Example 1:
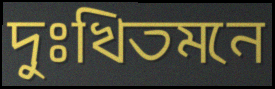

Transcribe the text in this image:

দুঃখিতমনে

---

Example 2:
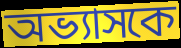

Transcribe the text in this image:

অভ্যাসকে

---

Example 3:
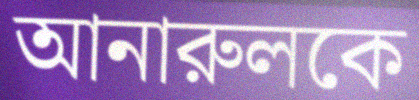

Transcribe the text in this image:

আনারুলকে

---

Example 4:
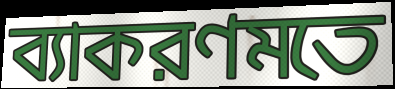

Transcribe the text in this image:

ব্যাকরণমতে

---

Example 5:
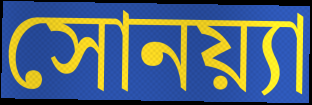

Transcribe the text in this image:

সোনয়্যা